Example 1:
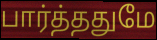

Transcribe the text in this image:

பார்த்ததுமே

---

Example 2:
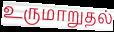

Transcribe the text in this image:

உருமாறுதல்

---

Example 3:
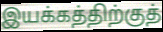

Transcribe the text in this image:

இயக்கத்திற்குத்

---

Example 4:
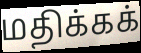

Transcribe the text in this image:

மதிக்கக்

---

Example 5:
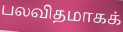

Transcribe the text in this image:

பலவிதமாகக்